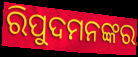
ରିପୁଦମନଙ୍କର